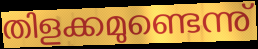
തിളക്കമുണ്ടെന്നു്